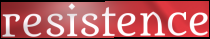
resistence